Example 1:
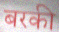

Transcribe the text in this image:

बरकी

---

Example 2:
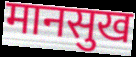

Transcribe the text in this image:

मानसुख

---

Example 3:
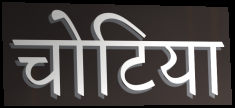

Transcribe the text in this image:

चोटिया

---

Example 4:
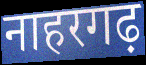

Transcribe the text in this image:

नाहरगढ़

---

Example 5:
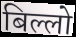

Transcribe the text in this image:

बिल्लो